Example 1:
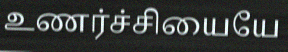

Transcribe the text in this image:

உணர்ச்சியையே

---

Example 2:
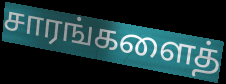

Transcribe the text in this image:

சாரங்களைத்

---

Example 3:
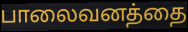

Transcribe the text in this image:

பாலைவனத்தை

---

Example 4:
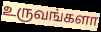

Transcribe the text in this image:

உருவங்களா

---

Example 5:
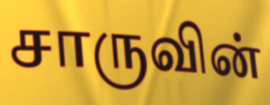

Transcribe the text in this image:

சாருவின்